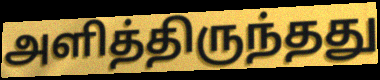
அளித்திருந்தது